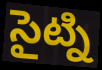
సైట్ని